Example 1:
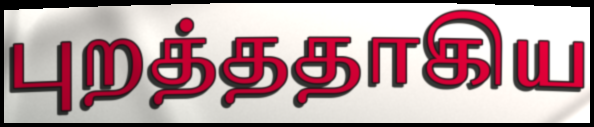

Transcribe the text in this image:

புறத்ததாகிய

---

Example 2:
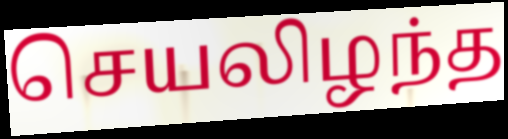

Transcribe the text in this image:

செயலிழந்த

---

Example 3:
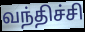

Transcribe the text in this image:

வந்திச்சி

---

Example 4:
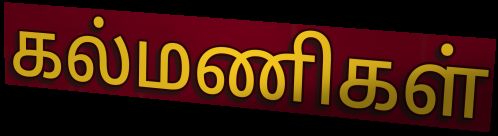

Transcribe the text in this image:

கல்மணிகள்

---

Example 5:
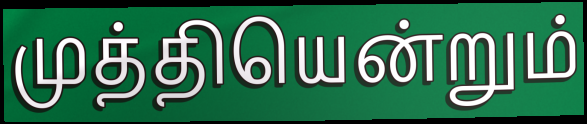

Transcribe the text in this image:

முத்தியென்றும்